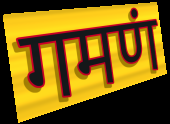
गमणं